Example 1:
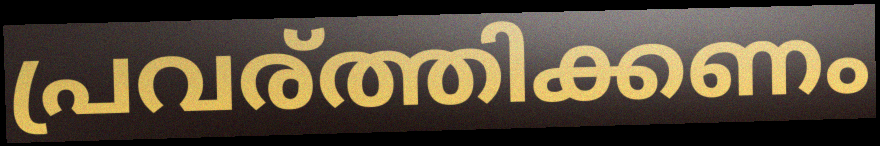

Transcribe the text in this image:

പ്രവര്ത്തിക്കണം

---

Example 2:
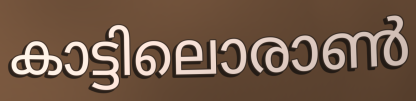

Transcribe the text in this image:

കാട്ടിലൊരാൺ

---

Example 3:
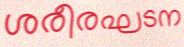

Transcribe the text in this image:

ശരീരഘടന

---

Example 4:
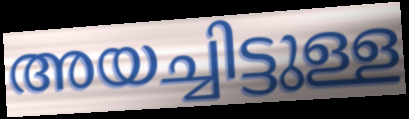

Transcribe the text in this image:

അയച്ചിട്ടുള്ള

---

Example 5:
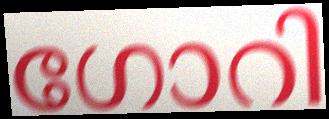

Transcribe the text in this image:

ഗോറി